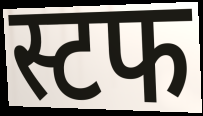
स्टफ